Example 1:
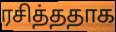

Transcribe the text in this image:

ரசித்ததாக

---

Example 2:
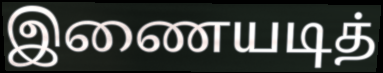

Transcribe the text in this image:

இணையடித்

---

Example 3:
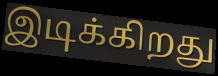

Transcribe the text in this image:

இடிக்கிறது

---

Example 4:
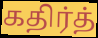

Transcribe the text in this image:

கதிர்த்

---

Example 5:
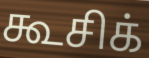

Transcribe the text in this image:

கூசிக்